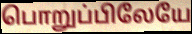
பொறுப்பிலேயே